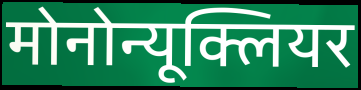
मोनोन्यूक्लियर